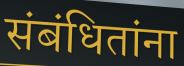
संबंधितांना